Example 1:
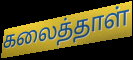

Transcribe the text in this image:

கலைத்தாள்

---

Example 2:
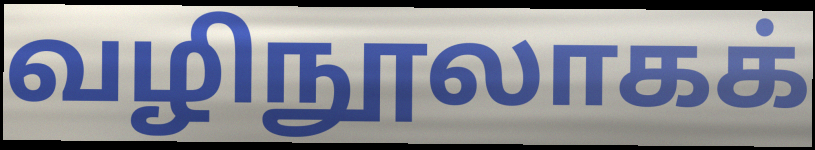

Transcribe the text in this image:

வழிநூலாகக்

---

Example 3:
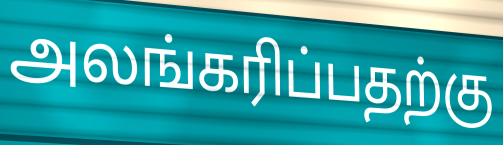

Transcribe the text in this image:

அலங்கரிப்பதற்கு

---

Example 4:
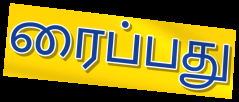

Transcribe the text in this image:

ரைப்பது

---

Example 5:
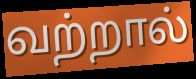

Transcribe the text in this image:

வற்றால்